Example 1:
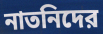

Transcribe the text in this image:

নাতনিদের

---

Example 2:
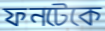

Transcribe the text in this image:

ফনটেকে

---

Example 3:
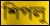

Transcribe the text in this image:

শিপলু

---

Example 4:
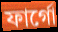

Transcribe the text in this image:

ফার্গো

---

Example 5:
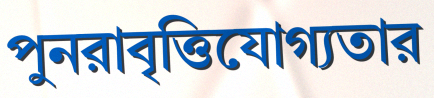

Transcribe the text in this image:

পুনরাবৃত্তিযোগ্যতার